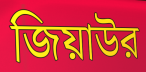
জিয়াউর